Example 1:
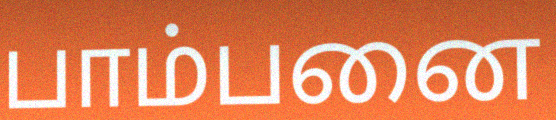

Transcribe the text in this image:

பாம்பனை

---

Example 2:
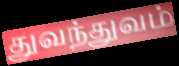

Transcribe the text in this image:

துவந்துவம்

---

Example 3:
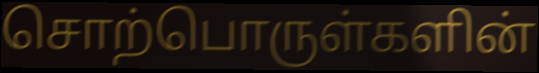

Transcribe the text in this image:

சொற்பொருள்களின்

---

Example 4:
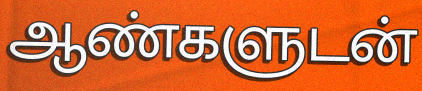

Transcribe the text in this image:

ஆண்களுடன்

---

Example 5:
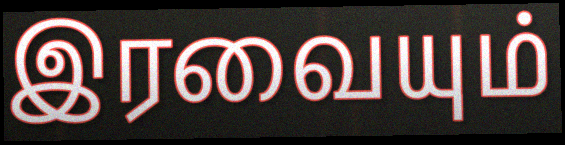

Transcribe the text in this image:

இரவையும்